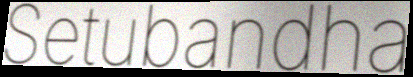
Setubandha